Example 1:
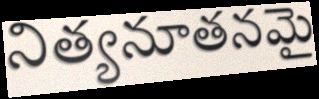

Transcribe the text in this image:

నిత్యనూతనమై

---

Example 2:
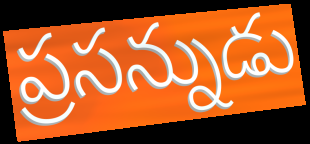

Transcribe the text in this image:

ప్రసన్నుడు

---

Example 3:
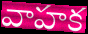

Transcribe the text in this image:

వాహక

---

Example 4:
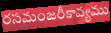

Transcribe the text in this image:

రసమంజరీకావ్యము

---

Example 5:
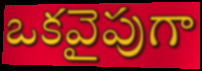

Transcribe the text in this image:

ఒకవైపుగా